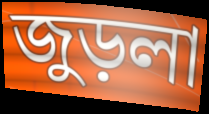
জুড়লা